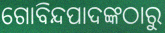
ଗୋବିନ୍ଦପାଦଙ୍କଠାରୁ